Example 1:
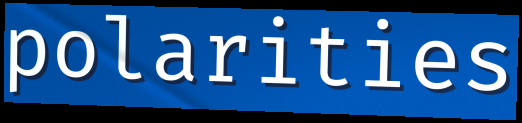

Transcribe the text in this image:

polarities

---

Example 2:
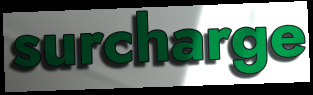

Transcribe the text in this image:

surcharge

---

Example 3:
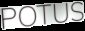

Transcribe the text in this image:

POTUS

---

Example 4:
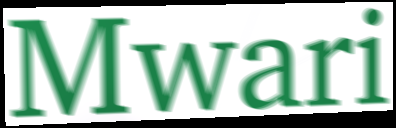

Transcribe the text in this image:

Mwari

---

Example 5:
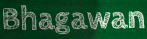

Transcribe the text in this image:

Bhagawan